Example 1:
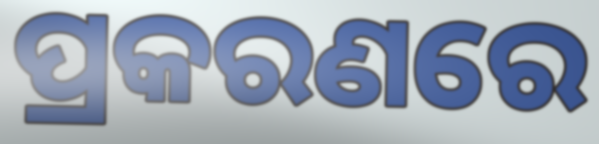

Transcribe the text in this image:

ପ୍ରକରଣରେ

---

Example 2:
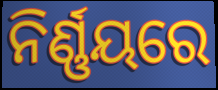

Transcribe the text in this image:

ନିର୍ଣ୍ଣୟରେ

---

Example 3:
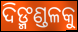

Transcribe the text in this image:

ଦିଙ୍ମଣ୍ଡଳକୁ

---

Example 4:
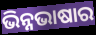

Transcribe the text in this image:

ଭିନ୍ନଭାଷାର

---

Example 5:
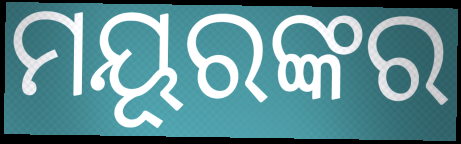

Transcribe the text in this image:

ମୟୂରଙ୍କର